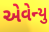
એવેન્યુ